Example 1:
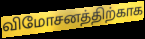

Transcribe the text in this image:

விமோசனத்திற்காக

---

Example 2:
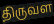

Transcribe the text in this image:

திருவள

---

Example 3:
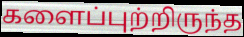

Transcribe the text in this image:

களைப்புற்றிருந்த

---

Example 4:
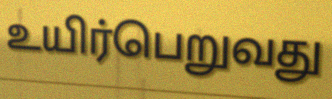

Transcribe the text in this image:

உயிர்பெறுவது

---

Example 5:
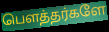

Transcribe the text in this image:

பௌத்தர்களே